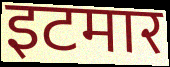
इटमार